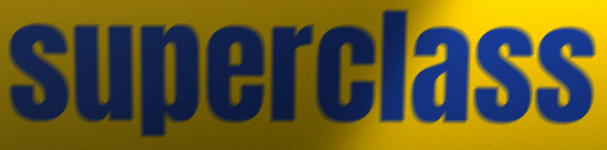
superclass